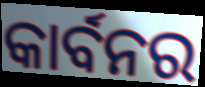
କାର୍ବନର